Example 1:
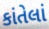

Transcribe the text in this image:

કાંતેલાં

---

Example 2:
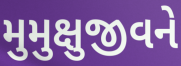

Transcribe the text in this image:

મુમુક્ષુજીવને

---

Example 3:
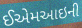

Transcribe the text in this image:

ઈએમઆઇની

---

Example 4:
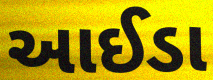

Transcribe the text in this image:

આઈડા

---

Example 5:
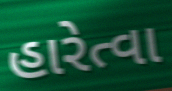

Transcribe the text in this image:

હારેત્વા